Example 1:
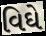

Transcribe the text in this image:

વિઘે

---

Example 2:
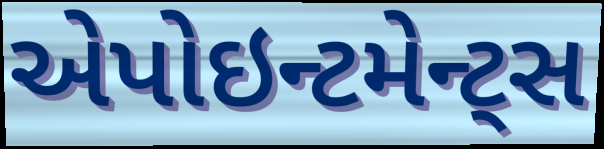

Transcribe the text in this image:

એપોઇન્ટમેન્ટ્સ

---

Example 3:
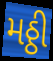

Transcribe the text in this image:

મઠ્ઠી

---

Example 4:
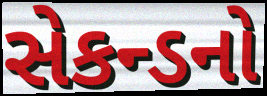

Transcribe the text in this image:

સેકન્ડનો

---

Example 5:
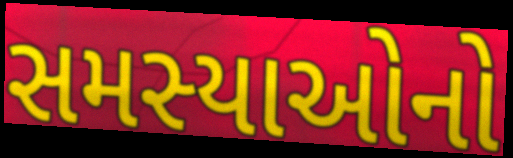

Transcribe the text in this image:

સમસ્યાઓનો